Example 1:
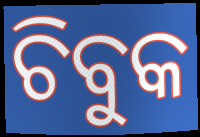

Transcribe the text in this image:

ଚିବୁକ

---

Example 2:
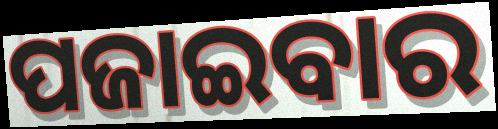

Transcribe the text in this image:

ପଜାଇବାର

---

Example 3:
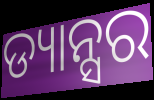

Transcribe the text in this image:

ଡ୍ୟାନ୍ସର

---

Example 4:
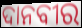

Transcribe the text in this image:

ଦାନବୀର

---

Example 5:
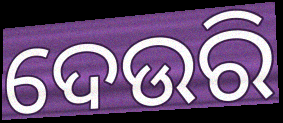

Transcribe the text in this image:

ଦେଉରି